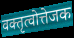
वक्तृत्वोत्तेजक